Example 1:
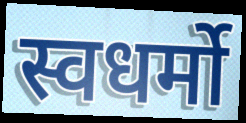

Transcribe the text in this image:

स्वधर्मो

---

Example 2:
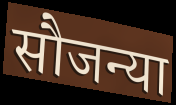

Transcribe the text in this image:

सौजन्या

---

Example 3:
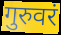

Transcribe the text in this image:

गुरुवरं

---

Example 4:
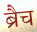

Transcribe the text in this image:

ब्रैच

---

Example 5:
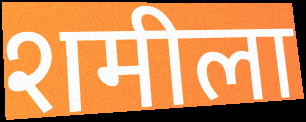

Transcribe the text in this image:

शमीला